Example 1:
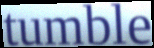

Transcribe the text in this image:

tumble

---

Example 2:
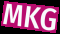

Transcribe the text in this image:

MKG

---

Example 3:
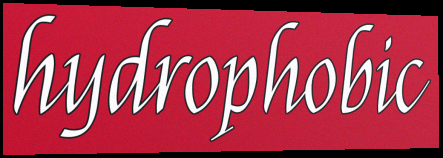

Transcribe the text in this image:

hydrophobic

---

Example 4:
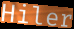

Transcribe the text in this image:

Hiler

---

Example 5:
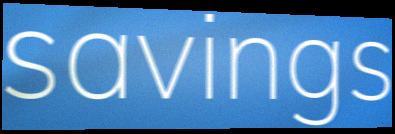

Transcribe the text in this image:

savings